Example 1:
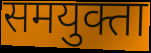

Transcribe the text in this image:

समयुक्ता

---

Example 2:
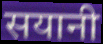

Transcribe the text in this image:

सयानी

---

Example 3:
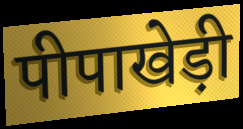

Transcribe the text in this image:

पीपाखेड़ी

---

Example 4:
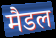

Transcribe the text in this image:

मैडल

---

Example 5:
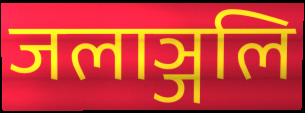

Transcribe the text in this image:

जलाञ्जलि